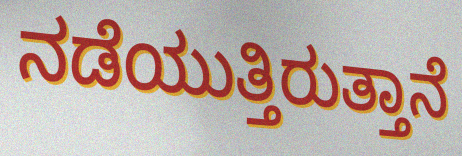
ನಡೆಯುತ್ತಿರುತ್ತಾನೆ